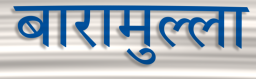
बारामुल्ला